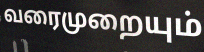
வரைமுறையும்